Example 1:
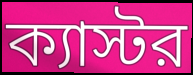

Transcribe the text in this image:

ক্যাস্টর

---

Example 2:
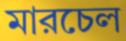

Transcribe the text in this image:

মারচেল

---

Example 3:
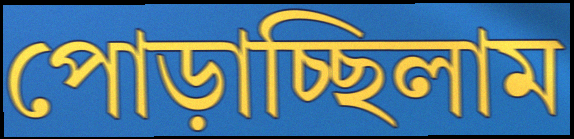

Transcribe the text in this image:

পোড়াচ্ছিলাম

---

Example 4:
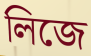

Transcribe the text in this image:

লিজে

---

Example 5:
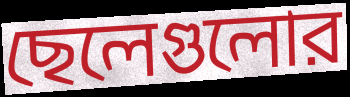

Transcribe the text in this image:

ছেলেগুলোর